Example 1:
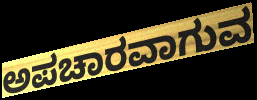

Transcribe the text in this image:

ಅಪಚಾರವಾಗುವ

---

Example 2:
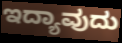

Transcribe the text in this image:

ಇದ್ಯಾವುದು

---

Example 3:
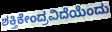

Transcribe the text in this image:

ಶಕ್ತಿಕೇಂದ್ರವಿದೆಯೆಂದು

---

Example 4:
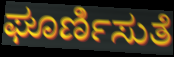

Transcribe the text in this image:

ಘೂರ್ಣಿಸುತೆ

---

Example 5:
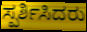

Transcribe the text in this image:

ಸ್ಪರ್ಶಿಸಿದರು